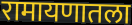
रामायणातला